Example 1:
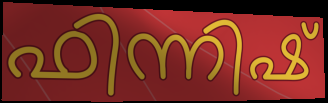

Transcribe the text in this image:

ഫിന്നിഷ്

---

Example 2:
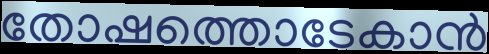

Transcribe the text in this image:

തോഷത്തൊടേകാൻ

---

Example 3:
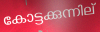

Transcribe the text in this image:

കോട്ടക്കുന്നില്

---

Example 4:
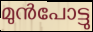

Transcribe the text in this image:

മുൻപോട്ടു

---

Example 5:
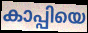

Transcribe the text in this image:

കാപ്പിയെ